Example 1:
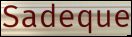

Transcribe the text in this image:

Sadeque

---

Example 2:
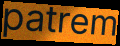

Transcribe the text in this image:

patrem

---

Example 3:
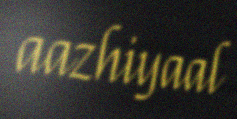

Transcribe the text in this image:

aazhiyaal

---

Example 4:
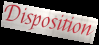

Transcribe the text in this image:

Disposition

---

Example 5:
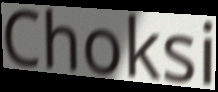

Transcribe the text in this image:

Choksi